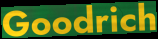
Goodrich